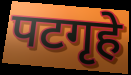
पटगृहे